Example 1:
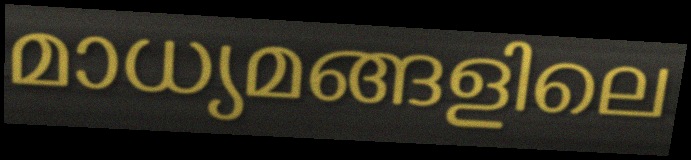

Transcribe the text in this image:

മാധ്യമങ്ങളിലെ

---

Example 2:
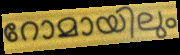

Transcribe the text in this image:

റോമായിലും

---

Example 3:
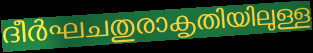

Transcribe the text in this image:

ദീർഘചതുരാകൃതിയിലുള്ള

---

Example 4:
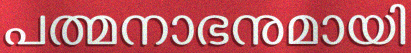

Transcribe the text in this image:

പത്മനാഭനുമായി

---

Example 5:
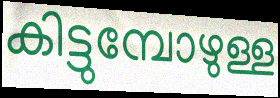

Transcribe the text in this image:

കിട്ടുമ്പോഴുള്ള